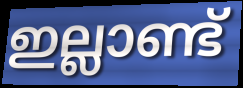
ഇല്ലാണ്ട്